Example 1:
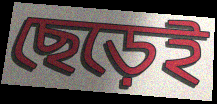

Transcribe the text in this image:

ছেড়েই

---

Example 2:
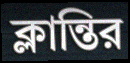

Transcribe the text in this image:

ক্লান্তির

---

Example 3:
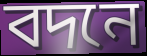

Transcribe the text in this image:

বদনে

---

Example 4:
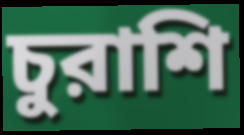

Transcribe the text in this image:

চুরাশি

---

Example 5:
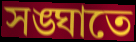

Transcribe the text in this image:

সঙ্ঘাতে